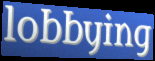
lobbying